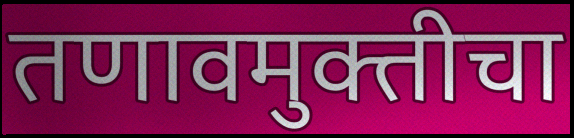
तणावमुक्तीचा